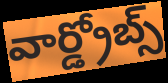
వార్డ్రోబ్స్